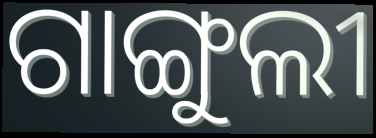
ଗାଙ୍ଗୁଲୀ